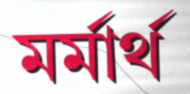
মর্মার্থ